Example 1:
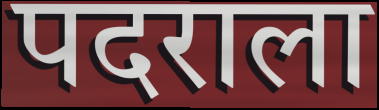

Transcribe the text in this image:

पदराला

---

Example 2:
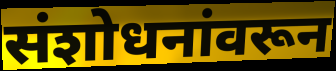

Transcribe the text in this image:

संशोधनांवरून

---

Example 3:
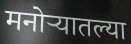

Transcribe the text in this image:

मनोर्‍यातल्या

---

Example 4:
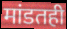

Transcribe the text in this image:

मांडतही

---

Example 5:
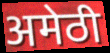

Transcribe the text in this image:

अमेठी